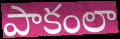
పాకంలా